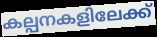
കല്പനകളിലേക്ക്